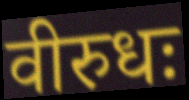
वीरुधः